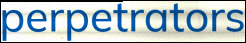
perpetrators